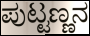
ಪುಟ್ಟಣ್ಣನ